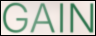
GAIN